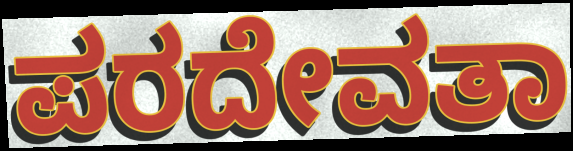
ಪರದೇವತಾ